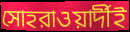
সোহরাওয়ার্দীই